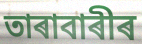
তাৰাবাৰীৰ